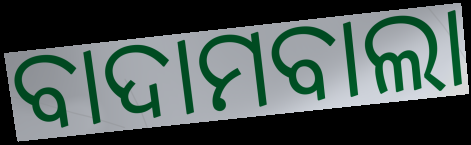
ବାଦାମବାଲା